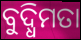
ବୁଦ୍ଧିମତା